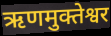
ऋणमुक्तेश्वर